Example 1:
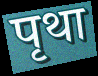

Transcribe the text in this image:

पृथा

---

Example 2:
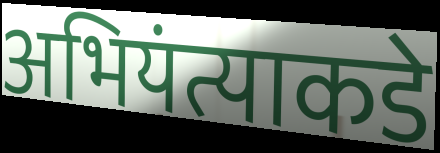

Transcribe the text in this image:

अभियंत्याकडे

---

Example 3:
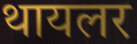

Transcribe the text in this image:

थायलर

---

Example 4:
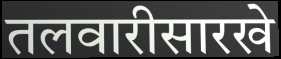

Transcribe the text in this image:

तलवारीसारखे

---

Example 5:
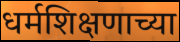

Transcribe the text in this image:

धर्मशिक्षणाच्या